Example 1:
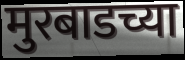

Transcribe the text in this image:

मुरबाडच्या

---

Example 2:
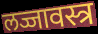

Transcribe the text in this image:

लज्जावस्त्र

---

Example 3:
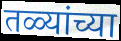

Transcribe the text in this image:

तळ्यांच्या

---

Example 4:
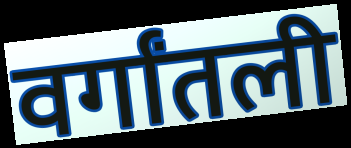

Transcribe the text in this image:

वर्गांतली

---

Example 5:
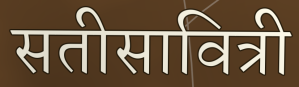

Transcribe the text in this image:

सतीसावित्री